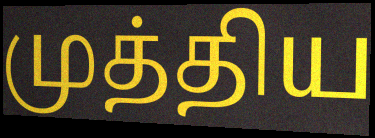
முத்திய